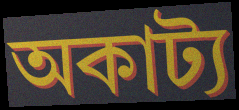
অকাট্য